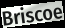
Briscoe